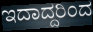
ಇದಾದ್ದರಿಂದ